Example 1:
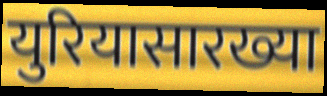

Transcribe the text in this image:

युरियासारख्या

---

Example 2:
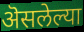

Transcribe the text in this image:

ऄसलेल्या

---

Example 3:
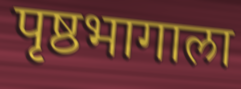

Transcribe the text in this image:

पृष्ठभागाला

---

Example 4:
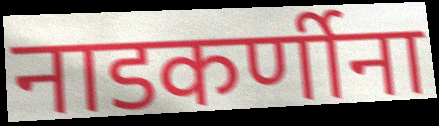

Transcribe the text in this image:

नाडकर्णीना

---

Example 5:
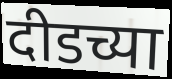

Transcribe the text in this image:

दीडच्या